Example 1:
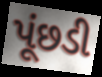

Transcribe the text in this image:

પૂંછડી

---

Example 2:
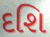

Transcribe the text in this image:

દશિ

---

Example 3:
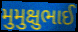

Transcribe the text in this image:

મુમુક્ષુભાઈ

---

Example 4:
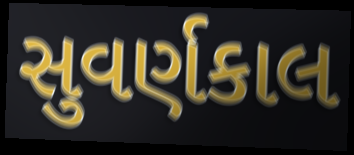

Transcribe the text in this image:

સુવર્ણકાલ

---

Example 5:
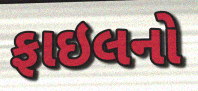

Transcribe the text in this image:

ફાઇલનો